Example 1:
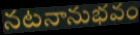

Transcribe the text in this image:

నటనానుభవం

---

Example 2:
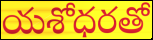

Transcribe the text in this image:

యశోధరతో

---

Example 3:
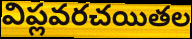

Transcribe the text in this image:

విప్లవరచయితల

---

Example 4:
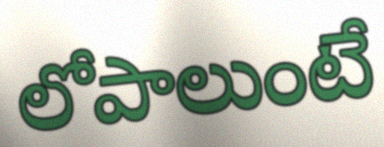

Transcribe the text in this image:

లోపాలుంటే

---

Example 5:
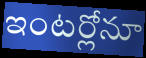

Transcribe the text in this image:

ఇంటర్లోనూ